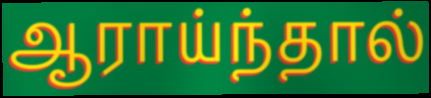
ஆராய்ந்தால்